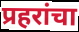
प्रहरांचा